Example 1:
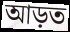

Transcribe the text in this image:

আড়ত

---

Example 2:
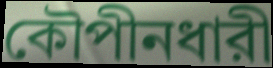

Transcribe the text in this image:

কৌপীনধারী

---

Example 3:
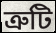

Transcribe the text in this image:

ত্রুটি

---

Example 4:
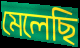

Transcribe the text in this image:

মেলেছি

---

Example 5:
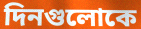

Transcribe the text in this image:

দিনগুলোকে